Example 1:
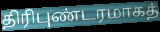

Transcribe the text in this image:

திரிபுண்டரமாகத்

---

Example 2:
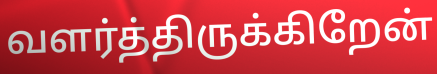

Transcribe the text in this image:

வளர்த்திருக்கிறேன்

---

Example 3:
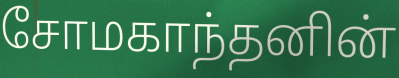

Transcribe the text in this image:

சோமகாந்தனின்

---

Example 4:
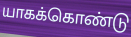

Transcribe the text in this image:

யாகக்கொண்டு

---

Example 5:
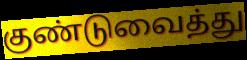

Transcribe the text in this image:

குண்டுவைத்து